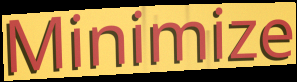
Minimize